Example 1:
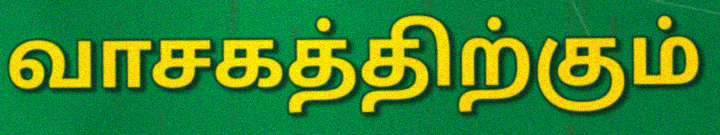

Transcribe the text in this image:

வாசகத்திற்கும்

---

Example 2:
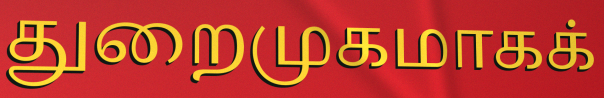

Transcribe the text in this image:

துறைமுகமாகக்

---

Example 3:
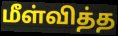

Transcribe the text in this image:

மீள்வித்த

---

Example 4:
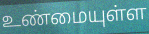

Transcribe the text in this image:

உண்மையுள்ள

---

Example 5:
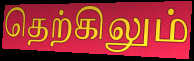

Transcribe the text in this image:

தெற்கிலும்